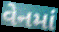
વેનમાં